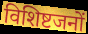
विशिष्टजनों